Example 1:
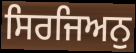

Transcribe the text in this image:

ਸਿਰਜਿਅਨੁ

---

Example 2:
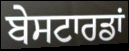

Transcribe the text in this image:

ਬੇਸਟਾਰਡਾਂ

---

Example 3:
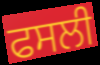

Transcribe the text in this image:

ਫਸਲੀ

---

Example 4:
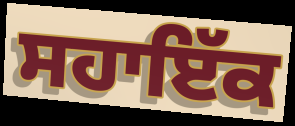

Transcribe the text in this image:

ਸਹਾਇੱਕ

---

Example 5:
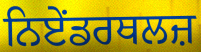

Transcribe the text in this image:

ਨਿਏਂਡਰਥਲਜ਼